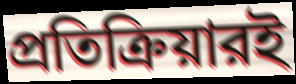
প্রতিক্রিয়ারই